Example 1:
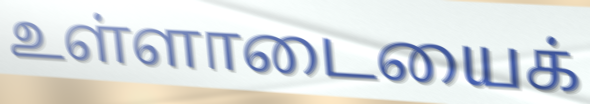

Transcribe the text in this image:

உள்ளாடையைக்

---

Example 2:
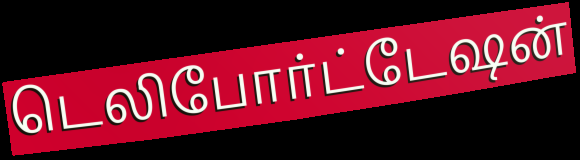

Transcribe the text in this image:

டெலிபோர்ட்டேஷன்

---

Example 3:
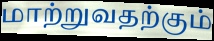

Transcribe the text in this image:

மாற்றுவதற்கும்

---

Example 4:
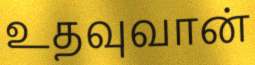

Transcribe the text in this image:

உதவுவான்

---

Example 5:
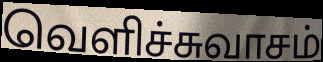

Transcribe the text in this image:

வெளிச்சுவாசம்